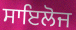
ਸਾਇਲੋਜ